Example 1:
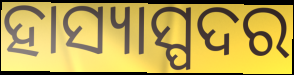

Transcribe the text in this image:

ହାସ୍ୟାସ୍ପଦର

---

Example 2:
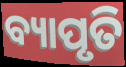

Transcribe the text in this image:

ବ୍ୟାପୃତି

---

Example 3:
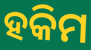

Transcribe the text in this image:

ହକିମ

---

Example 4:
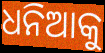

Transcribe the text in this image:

ଧନିଆକୁ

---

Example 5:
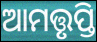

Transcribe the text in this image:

ଆମତ୍ତୃପ୍ତି